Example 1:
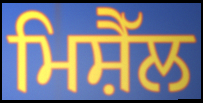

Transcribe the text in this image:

ਮਿਸ਼ੈੱਲ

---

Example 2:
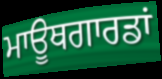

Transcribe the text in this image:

ਮਾਊਥਗਾਰਡਾਂ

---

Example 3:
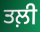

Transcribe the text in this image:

ਤਲ਼ੀ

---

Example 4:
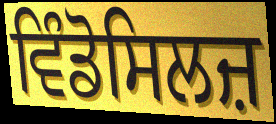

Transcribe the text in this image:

ਵਿੰਡੋਸਿਲਜ਼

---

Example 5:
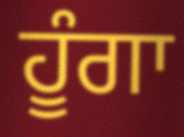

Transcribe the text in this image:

ਹੂੰਗਾ